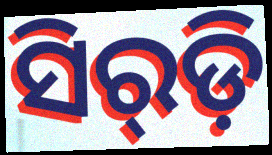
ସିର୍‌ଡ଼ି